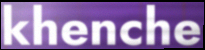
khenche